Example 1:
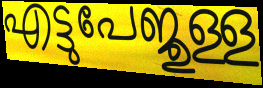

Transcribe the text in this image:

എട്ടുപേജുള്ള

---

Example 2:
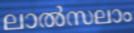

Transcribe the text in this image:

ലാൽസലാം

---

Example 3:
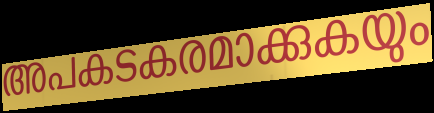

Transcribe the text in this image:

അപകടകരമാക്കുകയും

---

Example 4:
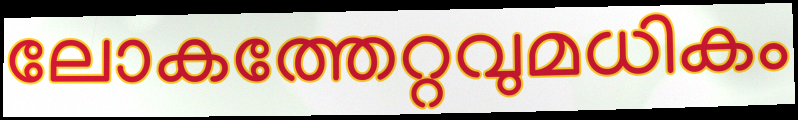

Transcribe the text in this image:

ലോകത്തേറ്റവുമധികം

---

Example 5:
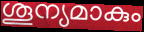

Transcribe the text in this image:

ശൂന്യമാകും